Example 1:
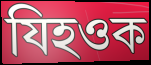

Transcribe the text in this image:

যিহওক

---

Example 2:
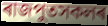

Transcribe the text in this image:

ৰাজপুতসকলৰ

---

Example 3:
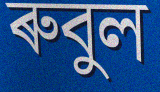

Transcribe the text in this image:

ৰুবুল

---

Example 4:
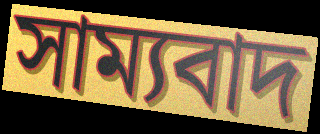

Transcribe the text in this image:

সাম্যবাদ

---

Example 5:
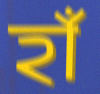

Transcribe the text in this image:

হাঁ